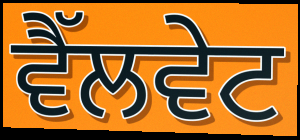
ਵੈੱਲਵੇਟ